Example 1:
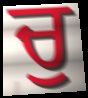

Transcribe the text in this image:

ਚੁ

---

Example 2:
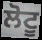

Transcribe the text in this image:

ਲੋਟੂ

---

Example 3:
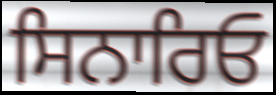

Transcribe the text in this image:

ਸਿਨਾਰਿਓ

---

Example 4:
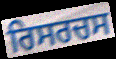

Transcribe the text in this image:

ਰਿਸਰਚਸ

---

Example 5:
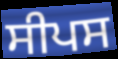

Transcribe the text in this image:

ਸੀਪਸ